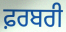
ਫ਼ਰਬਰੀ